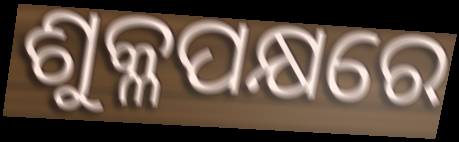
ଶୁକ୍ଳପକ୍ଷରେ